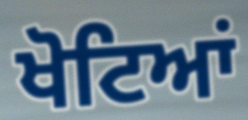
ਖੋਟਿਆਂ